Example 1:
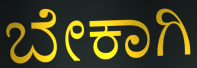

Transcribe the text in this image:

ಬೇಕಾಗಿ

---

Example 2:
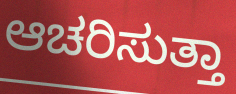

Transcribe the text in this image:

ಆಚರಿಸುತ್ತಾ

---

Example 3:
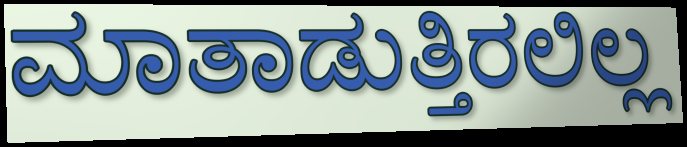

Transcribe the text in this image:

ಮಾತಾಡುತ್ತಿರಲಿಲ್ಲ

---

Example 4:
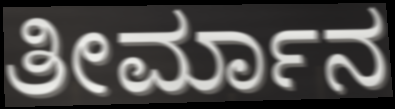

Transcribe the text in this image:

ತೀರ್ಮಾನ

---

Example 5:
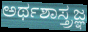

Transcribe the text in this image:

ಅರ್ಥಶಾಸ್ತ್ರಜ್ಞ